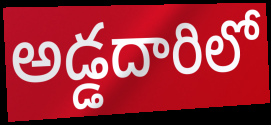
అడ్డదారిలో